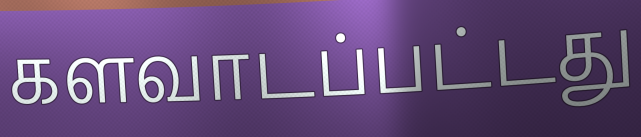
களவாடப்பட்டது